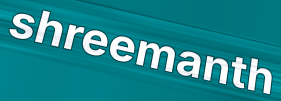
shreemanth